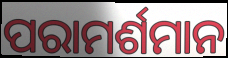
ପରାମର୍ଶମାନ